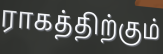
ராகத்திற்கும்